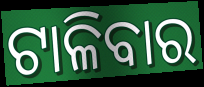
ଟାଳିବାର